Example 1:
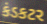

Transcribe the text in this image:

કંડકટર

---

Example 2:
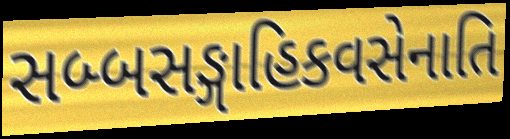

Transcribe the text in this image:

સબ્બસઙ્ગાહિકવસેનાતિ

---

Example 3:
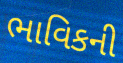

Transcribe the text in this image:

ભાવિકની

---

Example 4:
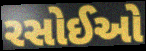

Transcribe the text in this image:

રસોઈઓ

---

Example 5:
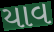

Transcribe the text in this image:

યાવ